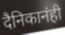
दैनिकानंही